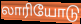
லாரியோடு